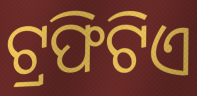
ଟ୍ରଫିଟିଏ